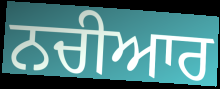
ਨਚੀਆਰ